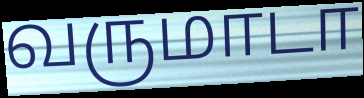
வருமாடா